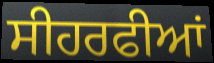
ਸੀਹਰਫੀਆਂ